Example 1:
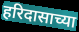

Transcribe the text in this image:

हरिदासाच्या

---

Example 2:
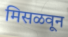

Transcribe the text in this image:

मिसळवून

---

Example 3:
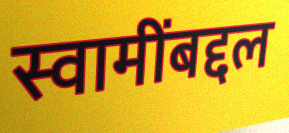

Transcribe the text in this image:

स्वामींबद्दल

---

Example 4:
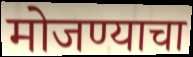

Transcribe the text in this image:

मोजण्याचा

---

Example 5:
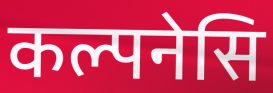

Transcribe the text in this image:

कल्पनेसि